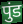
पुंड